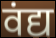
वंद्य